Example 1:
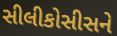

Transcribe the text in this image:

સીલીકોસીસને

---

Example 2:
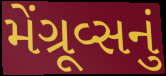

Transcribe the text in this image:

મેંગ્રૂવ્સનું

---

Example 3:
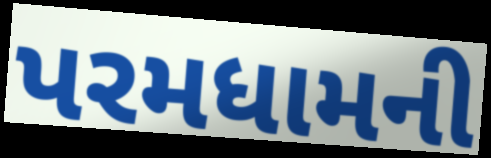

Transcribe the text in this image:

પરમધામની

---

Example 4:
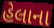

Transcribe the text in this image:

હેલાના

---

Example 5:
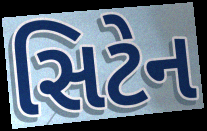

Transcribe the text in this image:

સિટેન